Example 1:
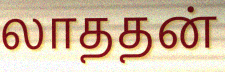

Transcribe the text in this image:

லாததன்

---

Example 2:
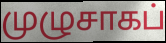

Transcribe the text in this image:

முழுசாகப்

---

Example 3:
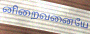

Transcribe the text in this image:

னிறைவனையே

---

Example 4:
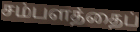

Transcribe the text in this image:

சம்பளத்தைப்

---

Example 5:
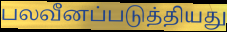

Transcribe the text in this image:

பலவீனப்படுத்தியது